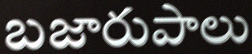
బజారుపాలు